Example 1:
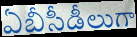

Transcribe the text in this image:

ఏబీసీడీలుగా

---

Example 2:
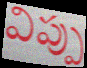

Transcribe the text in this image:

విప్పు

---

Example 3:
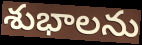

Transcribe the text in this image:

శుభాలను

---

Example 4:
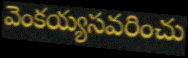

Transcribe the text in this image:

వెంకయ్యసవరించు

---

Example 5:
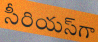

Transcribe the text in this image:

సీరియస్‌గా